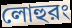
লোহুরং